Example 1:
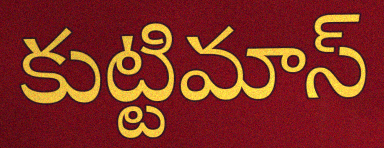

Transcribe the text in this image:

కుట్టిమాస్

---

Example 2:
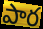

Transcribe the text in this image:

పార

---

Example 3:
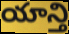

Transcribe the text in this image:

యాన్తి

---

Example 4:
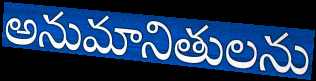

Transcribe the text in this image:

అనుమానితులను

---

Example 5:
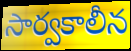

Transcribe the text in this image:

సార్వకాలీన